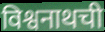
विश्वनाथची